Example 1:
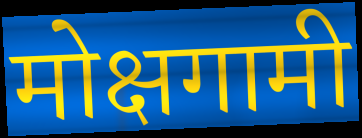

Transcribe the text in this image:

मोक्षगामी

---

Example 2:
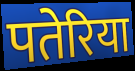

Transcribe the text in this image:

पतेरिया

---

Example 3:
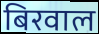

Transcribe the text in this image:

बिरवाल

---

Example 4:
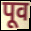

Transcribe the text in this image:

पूव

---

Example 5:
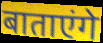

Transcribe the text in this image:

बाताएंगे